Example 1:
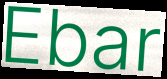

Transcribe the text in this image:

Ebar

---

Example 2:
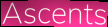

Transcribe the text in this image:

Ascents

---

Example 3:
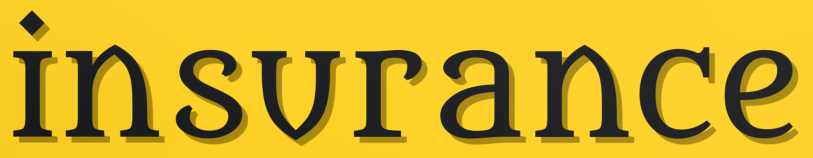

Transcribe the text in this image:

insurance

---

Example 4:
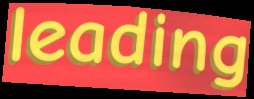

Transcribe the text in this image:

leading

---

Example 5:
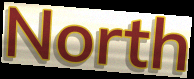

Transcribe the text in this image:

North